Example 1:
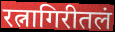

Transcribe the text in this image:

रत्नागिरीतलं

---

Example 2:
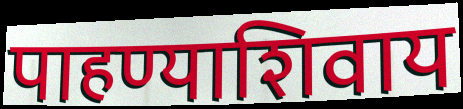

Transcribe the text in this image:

पाहण्याशिवाय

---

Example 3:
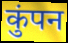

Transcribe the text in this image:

कुंपन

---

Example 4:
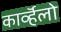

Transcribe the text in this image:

कार्व्हॅलो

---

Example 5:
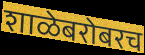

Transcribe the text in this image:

शाळेबरोबरच